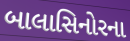
બાલાસિનોરના